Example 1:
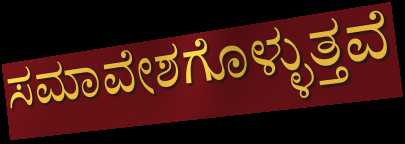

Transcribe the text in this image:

ಸಮಾವೇಶಗೊಳ್ಳುತ್ತವೆ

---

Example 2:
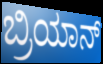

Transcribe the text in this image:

ಬ್ರಿಯಾನ್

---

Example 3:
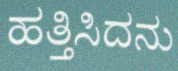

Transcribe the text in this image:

ಹತ್ತಿಸಿದನು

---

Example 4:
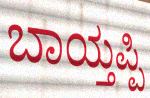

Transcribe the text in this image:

ಬಾಯ್ತಪ್ಪಿ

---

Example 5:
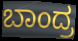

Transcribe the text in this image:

ಬಾಂದ್ರ